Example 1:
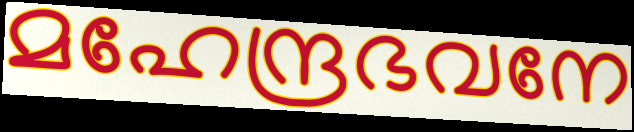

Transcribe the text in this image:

മഹേന്ദ്രഭവനേ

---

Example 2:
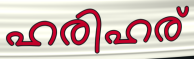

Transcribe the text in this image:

ഹരിഹര്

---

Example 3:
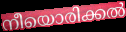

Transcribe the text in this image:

നീയൊരിക്കൽ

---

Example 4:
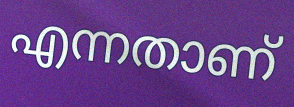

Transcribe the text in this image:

എന്നതാണ്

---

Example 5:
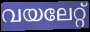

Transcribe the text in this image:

വയലേറ്റ്